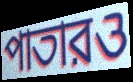
পাতারও